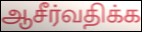
ஆசீர்வதிக்க